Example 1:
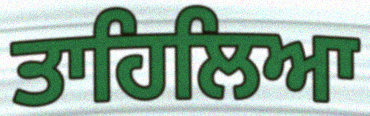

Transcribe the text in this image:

ਤਾਹਿਲਿਆ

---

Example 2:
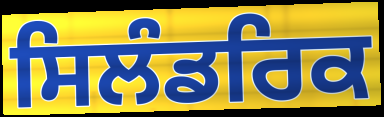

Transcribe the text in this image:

ਸਿਲੰਡਰਿਕ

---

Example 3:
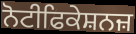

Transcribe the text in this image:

ਨੋਟੀਫਿਕੇਸ਼ਨਜ਼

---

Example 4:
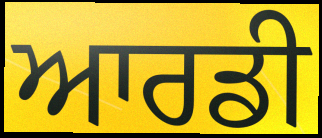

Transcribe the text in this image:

ਆਰਡੀ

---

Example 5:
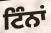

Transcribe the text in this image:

ਟਿੰਨਾਂ